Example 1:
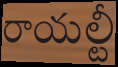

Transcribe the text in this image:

రాయల్టీ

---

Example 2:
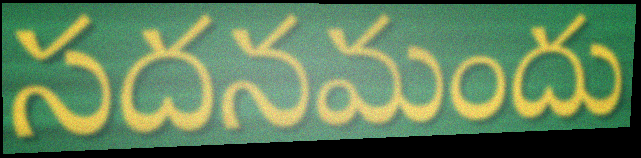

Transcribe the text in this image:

సదనమందు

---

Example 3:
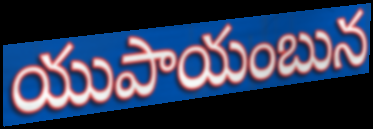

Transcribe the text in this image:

యుపాయంబున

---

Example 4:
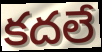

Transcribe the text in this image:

కదలే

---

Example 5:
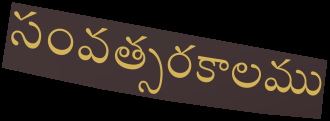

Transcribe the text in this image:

సంవత్సరకాలము